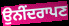
ਉਨੀਂਦਰਾਪਣ